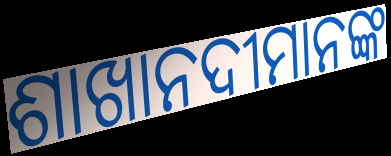
ଶାଖାନଦୀମାନଙ୍କ